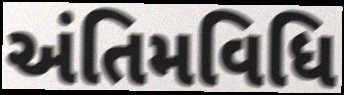
અંતિમવિધિ